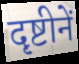
दृष्टीनें